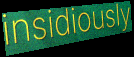
insidiously